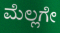
ಮೆಲ್ಲಗೇ